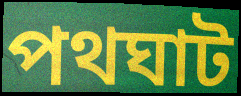
পথঘাট